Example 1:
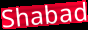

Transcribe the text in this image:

Shabad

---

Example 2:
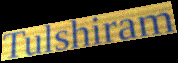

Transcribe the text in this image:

Tulshiram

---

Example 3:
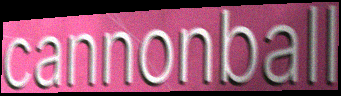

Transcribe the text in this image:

cannonball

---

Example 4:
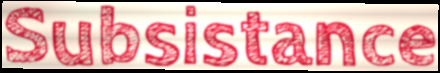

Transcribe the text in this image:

Subsistance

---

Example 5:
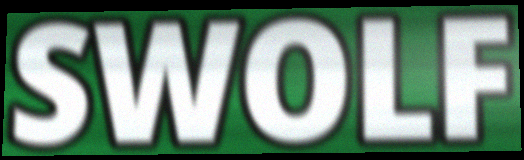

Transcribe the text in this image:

SWOLF